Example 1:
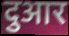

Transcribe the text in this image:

दुआर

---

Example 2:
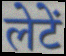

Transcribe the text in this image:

लेटें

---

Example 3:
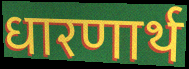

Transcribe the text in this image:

धारणार्थ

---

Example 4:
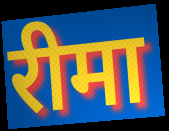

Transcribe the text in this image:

रीमा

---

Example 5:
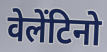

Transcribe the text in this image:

वेलेंटिनो